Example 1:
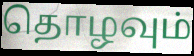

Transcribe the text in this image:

தொழவும்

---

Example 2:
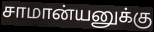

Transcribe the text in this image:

சாமான்யனுக்கு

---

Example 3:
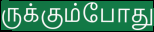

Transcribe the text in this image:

ருக்கும்போது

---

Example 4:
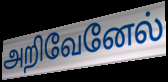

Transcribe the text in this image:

அறிவேனேல்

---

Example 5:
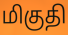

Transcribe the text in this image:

மிகுதி